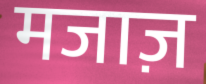
मजाज़